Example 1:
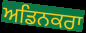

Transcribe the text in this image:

ਅਡਿਨਕਰਾ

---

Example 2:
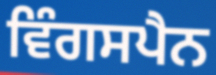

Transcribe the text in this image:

ਵਿੰਗਸਪੈਨ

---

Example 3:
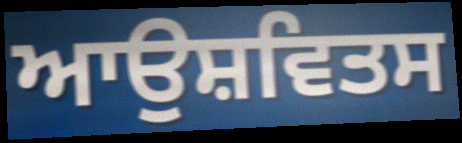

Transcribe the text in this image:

ਆਉਸ਼ਵਿਤਸ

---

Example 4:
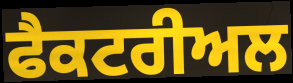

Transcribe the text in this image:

ਫੈਕਟਰੀਅਲ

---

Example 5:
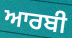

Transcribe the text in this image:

ਆਰਬੀ